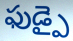
ఫుడ్పై